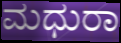
ಮಧುರಾ